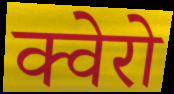
क्वेरो